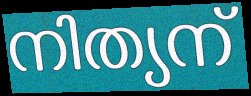
നിത്യന്